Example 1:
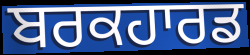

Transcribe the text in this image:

ਬਰਕਹਾਰਡ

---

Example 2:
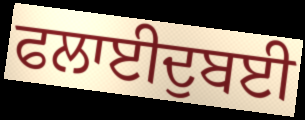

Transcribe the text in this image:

ਫਲਾਈਦੁਬਈ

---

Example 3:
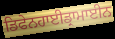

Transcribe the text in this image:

ਡਿਫੇਨਹਾਈਡ੍ਰਾਮਾਈਨ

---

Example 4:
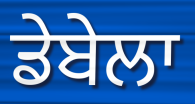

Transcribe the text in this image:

ਡੇਬੇਲਾ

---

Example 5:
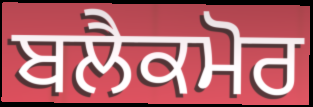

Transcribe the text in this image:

ਬਲੈਕਮੋਰ